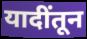
यादींतून